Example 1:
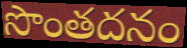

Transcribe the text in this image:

సొంతదనం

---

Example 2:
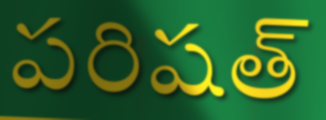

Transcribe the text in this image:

పరిషత్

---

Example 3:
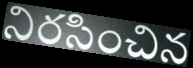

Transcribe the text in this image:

నిరసించిన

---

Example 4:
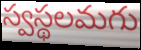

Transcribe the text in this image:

స్వస్థలమగు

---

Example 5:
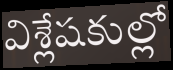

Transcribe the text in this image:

విశ్లేషకుల్లో